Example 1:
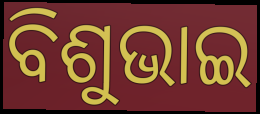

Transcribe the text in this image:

ବିଶୁଭାଇ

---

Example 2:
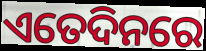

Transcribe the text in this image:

ଏତେଦିନରେ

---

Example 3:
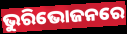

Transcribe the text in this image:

ଭୁରିଭୋଜନରେ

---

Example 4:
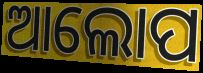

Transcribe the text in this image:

ଆଲୋପ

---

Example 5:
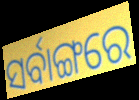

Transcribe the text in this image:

ସର୍ବାଙ୍ଗରେ